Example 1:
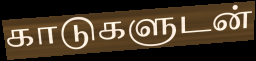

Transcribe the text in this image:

காடுகளுடன்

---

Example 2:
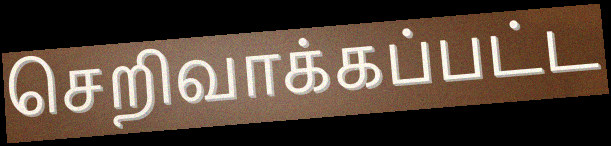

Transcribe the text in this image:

செறிவாக்கப்பட்ட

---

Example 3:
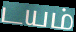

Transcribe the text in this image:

டயம்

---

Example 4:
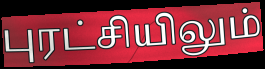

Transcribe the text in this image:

புரட்சியிலும்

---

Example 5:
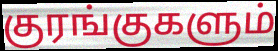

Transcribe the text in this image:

குரங்குகளும்